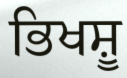
ਭਿਖਸ਼ੂ